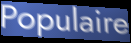
Populaire